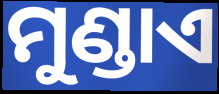
ମୁଣ୍ଡାଏ